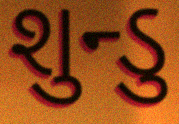
શુન્ડુ